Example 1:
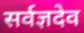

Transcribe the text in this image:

सर्वज्ञदेव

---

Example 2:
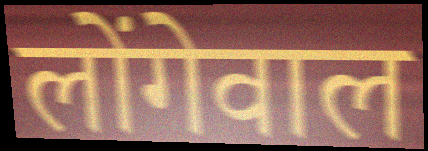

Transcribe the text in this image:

लोंगेवाल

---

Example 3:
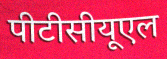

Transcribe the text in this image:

पीटीसीयूएल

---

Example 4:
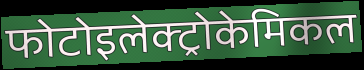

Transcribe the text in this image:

फोटोइलेक्ट्रोकेमिकल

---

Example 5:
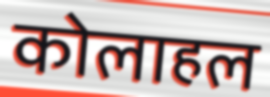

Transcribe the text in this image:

कोलाहल